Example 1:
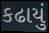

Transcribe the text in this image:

કઢાયું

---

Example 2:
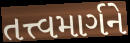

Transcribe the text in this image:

તત્ત્વમાર્ગને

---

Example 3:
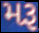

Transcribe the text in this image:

મરૂ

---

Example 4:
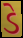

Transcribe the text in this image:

ડે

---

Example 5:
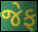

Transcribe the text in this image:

જેફ